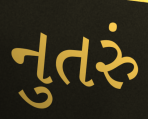
નુતરું